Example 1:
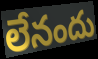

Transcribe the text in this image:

లేనందు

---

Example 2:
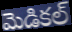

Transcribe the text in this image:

మెడికల్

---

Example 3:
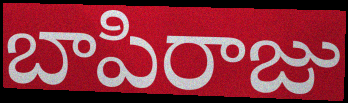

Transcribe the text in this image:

బాపిరాజు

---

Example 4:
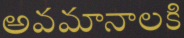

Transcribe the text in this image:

అవమానాలకి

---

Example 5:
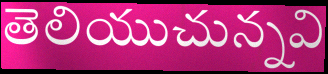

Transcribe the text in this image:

తెలియుచున్నవి